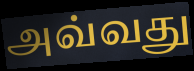
அவ்வது